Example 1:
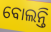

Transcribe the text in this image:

ବୋଲନ୍ତି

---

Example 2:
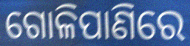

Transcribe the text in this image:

ଗୋଳିପାଣିରେ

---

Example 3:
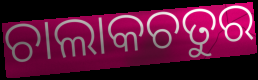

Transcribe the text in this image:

ଚାଲାକଚତୁର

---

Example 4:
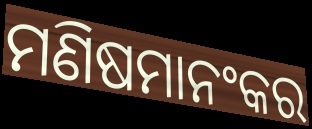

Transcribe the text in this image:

ମଣିଷମାନଂକର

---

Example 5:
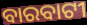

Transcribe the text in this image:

ବାରବାଟୀ